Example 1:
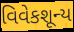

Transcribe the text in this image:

વિવેકશૂન્ય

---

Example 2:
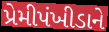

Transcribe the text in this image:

પ્રેમીપંખીડાને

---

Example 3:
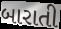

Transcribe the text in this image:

બારાતી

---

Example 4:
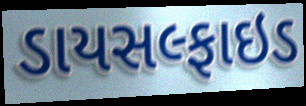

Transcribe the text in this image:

ડાયસલ્ફાઇડ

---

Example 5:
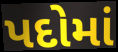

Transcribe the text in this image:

પદોમાં